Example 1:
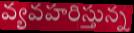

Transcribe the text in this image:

వ్యవహరిస్తున్న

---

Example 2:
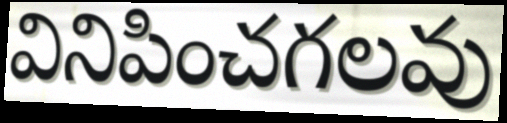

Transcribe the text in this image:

వినిపించగలవు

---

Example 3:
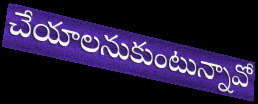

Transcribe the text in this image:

చేయాలనుకుంటున్నావో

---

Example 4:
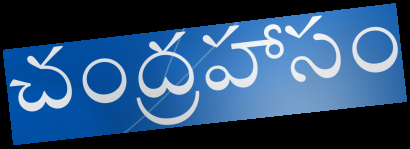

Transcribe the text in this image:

చంద్రహాసం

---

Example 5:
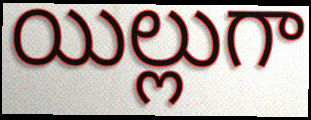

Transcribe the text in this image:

యిల్లుగా